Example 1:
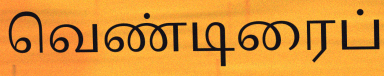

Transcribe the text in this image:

வெண்டிரைப்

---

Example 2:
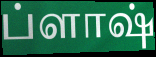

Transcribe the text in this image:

ப்ளாஷ்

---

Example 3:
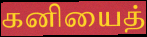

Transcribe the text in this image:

கனியைத்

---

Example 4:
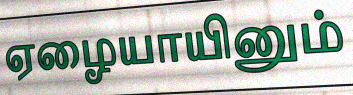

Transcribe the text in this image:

ஏழையாயினும்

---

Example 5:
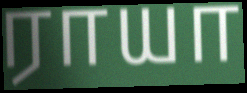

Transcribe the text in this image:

ராயா